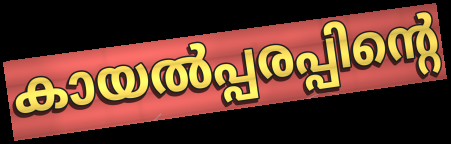
കായൽപ്പരപ്പിന്റെ